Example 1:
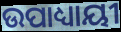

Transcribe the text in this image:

ଉପାଧ୍ୟାୟୀ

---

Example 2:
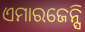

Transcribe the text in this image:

ଏମାରଜେନ୍ସି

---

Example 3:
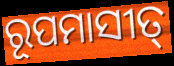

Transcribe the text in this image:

ରୂପମାସୀତ୍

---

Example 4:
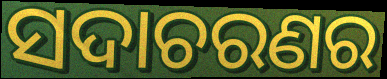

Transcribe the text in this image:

ସଦାଚରଣର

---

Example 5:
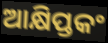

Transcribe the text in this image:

ଆକ୍ଷିପ୍ତକଂ